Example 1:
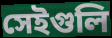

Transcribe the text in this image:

সেইগুলি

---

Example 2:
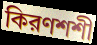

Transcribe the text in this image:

কিরণশশী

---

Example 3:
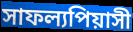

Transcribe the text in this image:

সাফল্যপিয়াসী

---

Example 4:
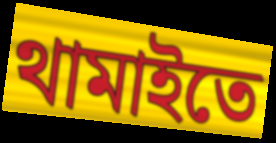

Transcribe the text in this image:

থামাইতে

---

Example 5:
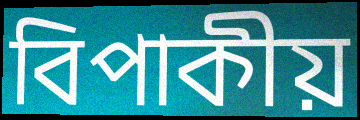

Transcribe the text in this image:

বিপাকীয়